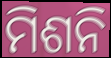
ମିଶନି